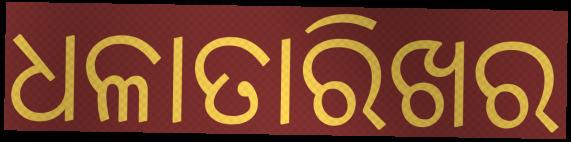
ଧଳାତାରିଖର